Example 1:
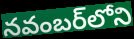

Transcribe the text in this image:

నవంబర్‌లోని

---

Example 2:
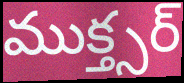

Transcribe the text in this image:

ముక్త్సర్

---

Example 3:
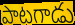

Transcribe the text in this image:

పాటగాడు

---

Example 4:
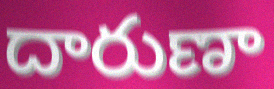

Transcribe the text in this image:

దారుణా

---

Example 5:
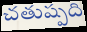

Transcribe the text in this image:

చతుష్పది